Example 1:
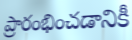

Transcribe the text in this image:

ప్రారంభించడానికీ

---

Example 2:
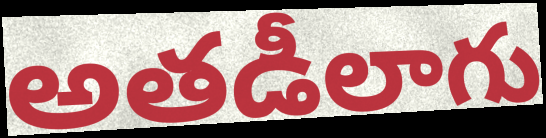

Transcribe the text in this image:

అతడీలాగు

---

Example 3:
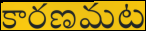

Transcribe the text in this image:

కారణమట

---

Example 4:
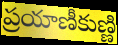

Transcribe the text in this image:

ప్రయాణీకుణ్ణి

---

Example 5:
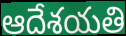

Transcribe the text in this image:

ఆదేశయతి